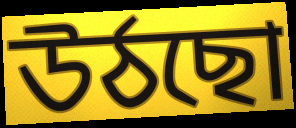
উঠছো